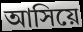
আসিয়ে